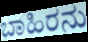
ಬಾಹಿರನು